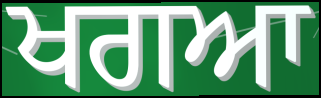
ਖਗਆ